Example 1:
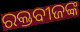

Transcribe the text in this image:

ରକ୍ତବୀଜଙ୍କ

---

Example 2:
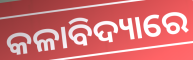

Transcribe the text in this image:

କଳାବିଦ୍ୟାରେ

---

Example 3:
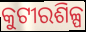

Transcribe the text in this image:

କୁଟୀରଶିଳ୍ପ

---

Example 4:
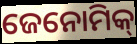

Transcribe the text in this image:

ଜେନୋମିକ୍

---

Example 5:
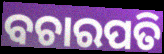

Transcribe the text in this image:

ବଚାରପତି